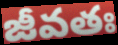
జీవతః